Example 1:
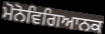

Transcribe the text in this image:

ਮੋਨੋਵਿਗਿਆਨਕ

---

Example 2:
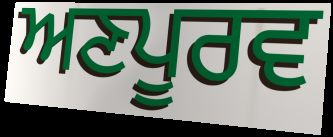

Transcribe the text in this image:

ਅਣਪੂਰਵ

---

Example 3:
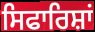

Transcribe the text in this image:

ਸਿਫਾਰਿਸ਼ਾਂ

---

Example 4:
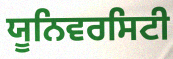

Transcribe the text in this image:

ਯੂਨਿਵਰਸਿਟੀ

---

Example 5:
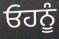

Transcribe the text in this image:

ਓਹਨੂੰ